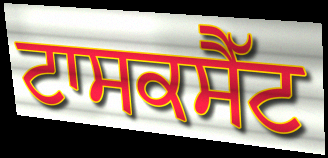
ਟਾਸਕਸੈੱਟ